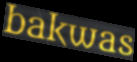
bakwas